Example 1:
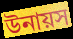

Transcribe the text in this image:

উনায়স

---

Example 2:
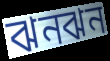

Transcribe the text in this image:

ঝনঝন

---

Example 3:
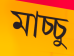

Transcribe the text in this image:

মাচ্চু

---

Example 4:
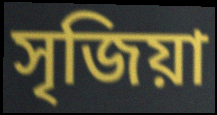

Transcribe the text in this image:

সৃজিয়া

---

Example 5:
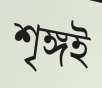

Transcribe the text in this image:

শৃঙ্গই